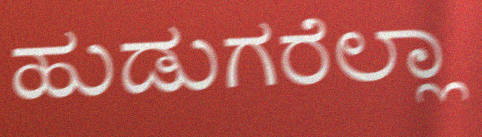
ಹುಡುಗರೆಲ್ಲಾ